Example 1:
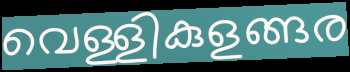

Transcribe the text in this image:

വെള്ളികുളങ്ങര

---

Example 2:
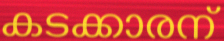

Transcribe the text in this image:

കടക്കാരന്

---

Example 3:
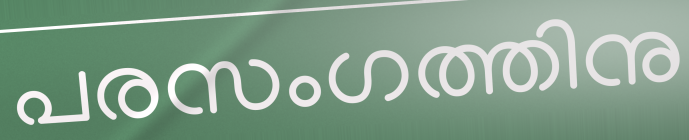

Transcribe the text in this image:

പരസംഗത്തിനു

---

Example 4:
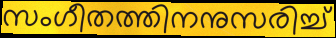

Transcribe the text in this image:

സംഗീതത്തിനനുസരിച്ച്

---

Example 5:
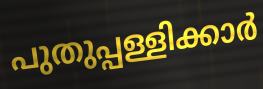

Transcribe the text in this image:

പുതുപ്പള്ളിക്കാർ